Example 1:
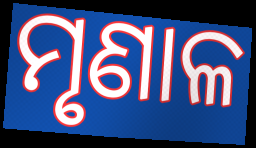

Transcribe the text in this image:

ମୃଣାଳ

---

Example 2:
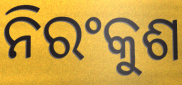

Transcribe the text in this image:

ନିରଂକୁଶ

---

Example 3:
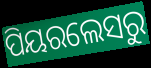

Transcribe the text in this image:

ପିୟରଲେସରୁ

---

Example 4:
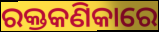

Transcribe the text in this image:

ରକ୍ତକଣିକାରେ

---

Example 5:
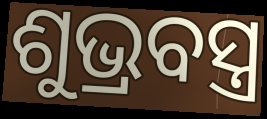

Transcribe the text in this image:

ଶୁଭ୍ରବସ୍ତ୍ର